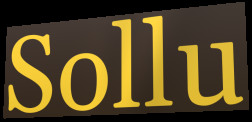
Sollu